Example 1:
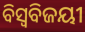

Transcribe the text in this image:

ବିସ୍ଵବିଜୟୀ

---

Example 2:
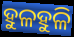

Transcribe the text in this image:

ହୁଳହୁଳି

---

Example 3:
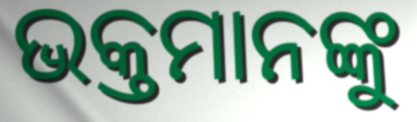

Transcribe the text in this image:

ଭକ୍ତମାନଙ୍କୁ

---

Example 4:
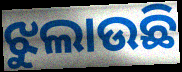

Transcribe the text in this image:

ଝୁଲାଉଛି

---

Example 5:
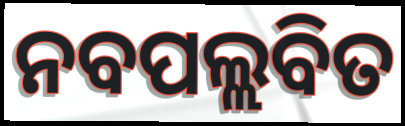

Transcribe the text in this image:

ନବପଲ୍ଲବିତ